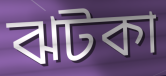
ঝটকা